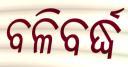
ବଳିବର୍ଦ୍ଧ